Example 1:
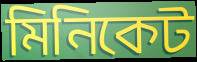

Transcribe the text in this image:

মিনিকেট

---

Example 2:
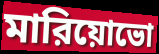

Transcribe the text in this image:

মারিয়োভো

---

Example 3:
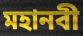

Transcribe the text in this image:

মহানবী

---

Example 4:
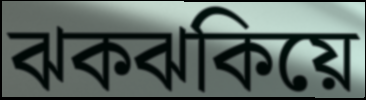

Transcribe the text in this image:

ঝকঝকিয়ে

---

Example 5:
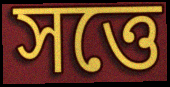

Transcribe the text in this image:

সত্তে